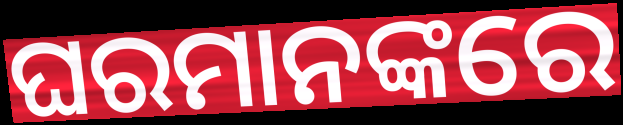
ଘରମାନଙ୍କରେ